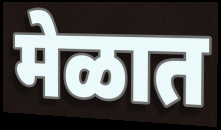
मेळात